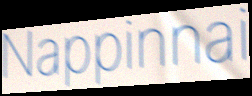
Nappinnai